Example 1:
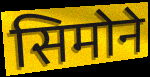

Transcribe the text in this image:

सिमोने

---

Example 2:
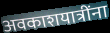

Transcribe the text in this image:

अवकाशयात्रींना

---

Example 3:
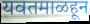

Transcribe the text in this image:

यवतमाळहून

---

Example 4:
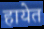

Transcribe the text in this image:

हायेत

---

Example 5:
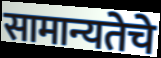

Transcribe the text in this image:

सामान्यतेचे